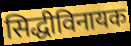
सिद्धीविनायक